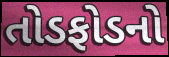
તોડફોડનો